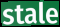
stale